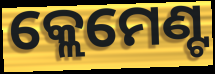
କ୍ଲେମେଣ୍ଟ